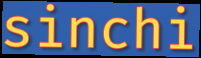
sinchi